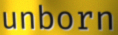
unborn